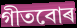
গীতবোৰ